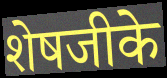
शेषजीके